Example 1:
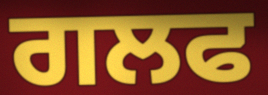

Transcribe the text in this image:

ਗਲਫ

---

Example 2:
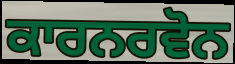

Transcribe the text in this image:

ਕਾਰਨਰਵੋਨ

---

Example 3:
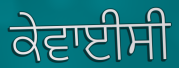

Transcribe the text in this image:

ਕੇਵਾਈਸੀ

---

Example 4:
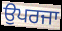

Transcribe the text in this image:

ਉਪਰਜਾ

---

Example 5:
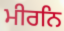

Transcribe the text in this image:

ਮੀਰਨਿ